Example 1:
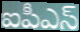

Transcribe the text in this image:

ఐపీఎస్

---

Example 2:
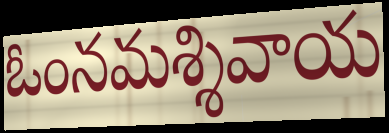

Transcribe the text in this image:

ఓంనమశ్శివాయ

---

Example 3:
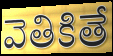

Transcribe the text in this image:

వెతికితే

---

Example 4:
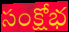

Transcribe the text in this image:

సంక్షోభ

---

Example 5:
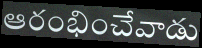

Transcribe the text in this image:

ఆరంభించేవాడు